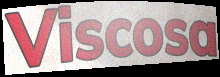
Viscosa